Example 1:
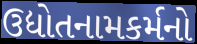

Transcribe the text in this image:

ઉદ્યોતનામકર્મનો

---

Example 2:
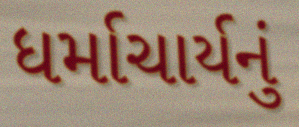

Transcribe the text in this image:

ધર્માચાર્યનું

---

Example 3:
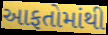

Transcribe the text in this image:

આફતોમાંથી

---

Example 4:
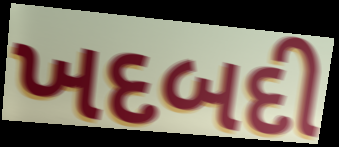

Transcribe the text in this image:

ખદબદી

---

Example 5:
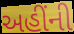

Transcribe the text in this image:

અહીંની